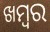
ଖମ୍ବର